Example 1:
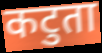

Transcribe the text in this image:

कटुता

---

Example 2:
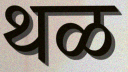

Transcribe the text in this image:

थळ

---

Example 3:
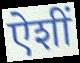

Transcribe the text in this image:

ऐशीं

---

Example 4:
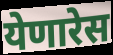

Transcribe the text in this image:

येणारेस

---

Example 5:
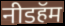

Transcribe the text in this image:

नीडहॅम